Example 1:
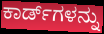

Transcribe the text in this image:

ಕಾರ್ಡ್‌ಗಳನ್ನು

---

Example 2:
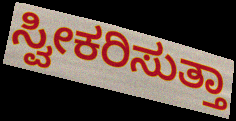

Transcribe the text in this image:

ಸ್ವೀಕರಿಸುತ್ತಾ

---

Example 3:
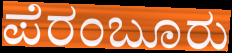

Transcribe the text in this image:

ಪೆರಂಬೂರು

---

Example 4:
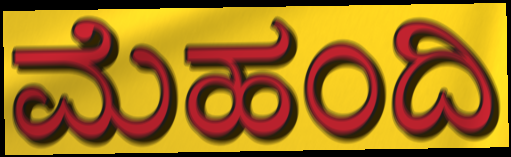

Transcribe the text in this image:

ಮೆಹಂದಿ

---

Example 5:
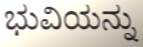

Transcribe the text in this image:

ಭುವಿಯನ್ನು